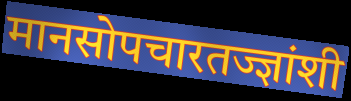
मानसोपचारतज्ज्ञांशी